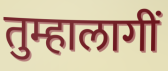
तुम्हालागीं